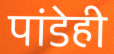
पांडेही